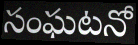
సంఘటనో